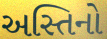
અસ્તિનો